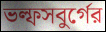
ভল্ফসবুর্গের